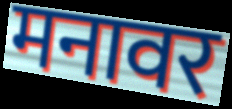
मनावर